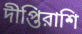
দীপ্তিরাশি